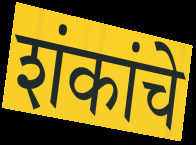
शंकांचे